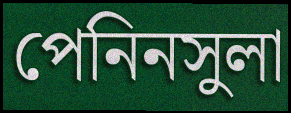
পেনিনসুলা